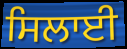
ਸਿਲਾਈ